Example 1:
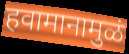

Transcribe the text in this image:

हवामानामुळं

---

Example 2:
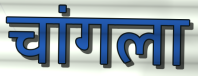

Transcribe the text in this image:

चांगला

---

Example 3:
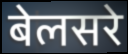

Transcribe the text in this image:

बेलसरे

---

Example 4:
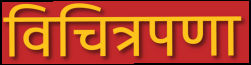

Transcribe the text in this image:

विचित्रपणा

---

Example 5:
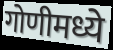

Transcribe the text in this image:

गोणीमध्ये